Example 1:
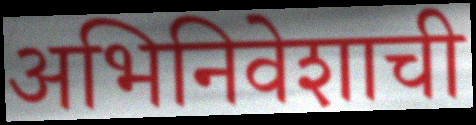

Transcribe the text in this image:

अभिनिवेशाची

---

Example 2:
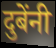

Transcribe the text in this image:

दुबेंनी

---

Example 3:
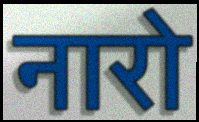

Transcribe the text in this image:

नारो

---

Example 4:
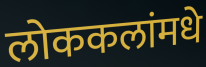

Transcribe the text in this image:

लोककलांमधे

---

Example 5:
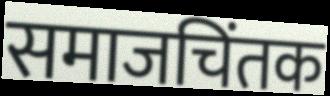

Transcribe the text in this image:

समाजचिंतक